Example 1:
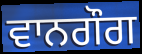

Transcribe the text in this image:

ਵਾਨਗੌਗ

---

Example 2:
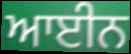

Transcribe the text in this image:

ਆਈਨ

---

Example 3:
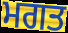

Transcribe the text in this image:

ਮਗਤ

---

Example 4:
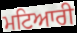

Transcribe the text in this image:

ਮਟਿਆਰੀ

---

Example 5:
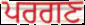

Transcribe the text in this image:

ਪਰਗਣ